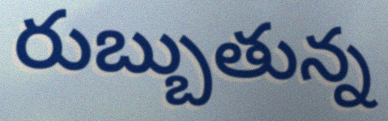
రుబ్బుతున్న